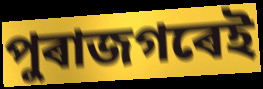
পুৰাজগৰেই